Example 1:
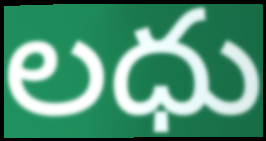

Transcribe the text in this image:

లధు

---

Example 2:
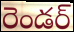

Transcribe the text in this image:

రెండర్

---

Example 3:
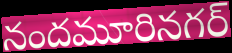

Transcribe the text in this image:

నందమూరినగర్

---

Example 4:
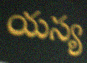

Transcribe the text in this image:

యస్య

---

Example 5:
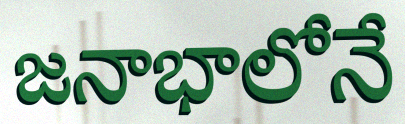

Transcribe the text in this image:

జనాభాలోనే